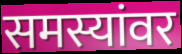
समस्यांवर